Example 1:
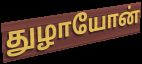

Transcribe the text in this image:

துழாயோன்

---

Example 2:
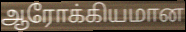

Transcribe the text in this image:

ஆரோக்கியமான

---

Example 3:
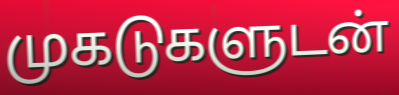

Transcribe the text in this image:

முகடுகளுடன்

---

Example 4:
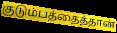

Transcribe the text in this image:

குடும்பத்தைத்தான்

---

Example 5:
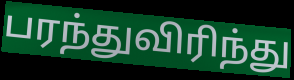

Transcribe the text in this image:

பரந்துவிரிந்து